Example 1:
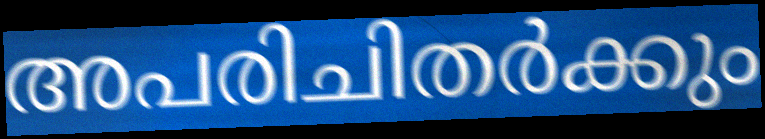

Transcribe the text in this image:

അപരിചിതർക്കും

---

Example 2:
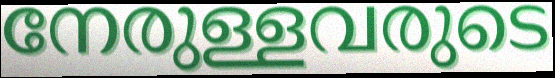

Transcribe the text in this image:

നേരുള്ളവരുടെ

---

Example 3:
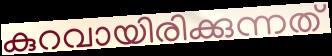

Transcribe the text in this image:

കുറവായിരിക്കുന്നത്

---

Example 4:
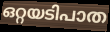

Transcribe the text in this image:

ഒറ്റയടിപാത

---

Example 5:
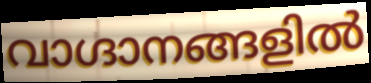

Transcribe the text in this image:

വാഗ്ദാനങ്ങളിൽ